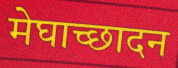
मेघाच्छादन